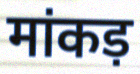
मांकड़